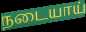
நடையாய்